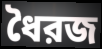
ধৈরজ